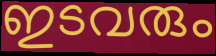
ഇടവരും